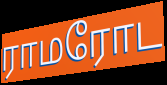
ராமரோட